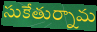
సుకేతుర్నామ